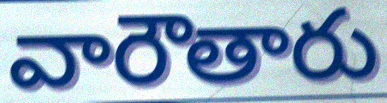
వారౌతారు